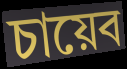
চায়েব